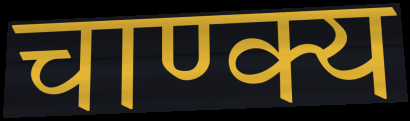
चाण्क्य